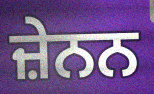
ਜ਼ੇਨਨ